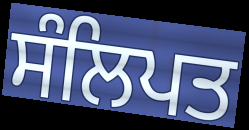
ਸੰਲਿਪਤ